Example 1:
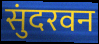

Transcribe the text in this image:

सुंदरवन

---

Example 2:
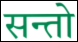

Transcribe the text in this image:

सन्तो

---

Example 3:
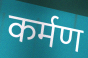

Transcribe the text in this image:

कर्मण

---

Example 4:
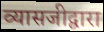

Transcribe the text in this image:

व्यासजीद्वारा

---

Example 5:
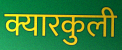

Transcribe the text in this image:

क्यारकुली